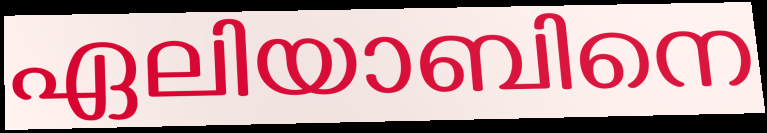
ഏലിയാബിനെ